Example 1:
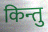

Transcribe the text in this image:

किन्तु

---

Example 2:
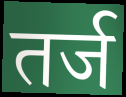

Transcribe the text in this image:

तर्ज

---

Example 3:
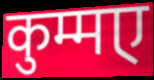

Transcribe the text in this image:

कुम्मए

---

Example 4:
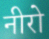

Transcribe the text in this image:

नीरो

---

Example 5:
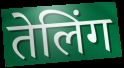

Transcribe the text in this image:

तेलिंग